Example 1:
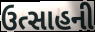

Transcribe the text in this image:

ઉત્સાહની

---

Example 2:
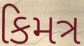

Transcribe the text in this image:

કિમત્ર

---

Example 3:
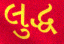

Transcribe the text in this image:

લુદ્ધ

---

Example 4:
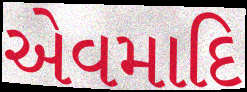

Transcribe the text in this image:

એવમાદિ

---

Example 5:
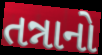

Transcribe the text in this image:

તન્નાનો